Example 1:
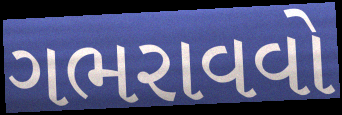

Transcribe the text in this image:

ગભરાવવો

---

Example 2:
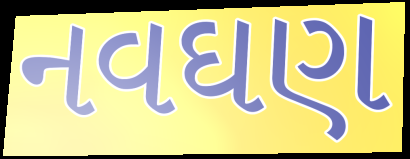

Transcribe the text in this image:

નવઘણ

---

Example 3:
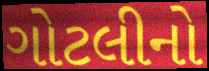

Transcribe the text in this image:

ગોટલીનો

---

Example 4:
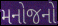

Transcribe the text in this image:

મનોજનો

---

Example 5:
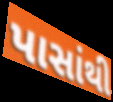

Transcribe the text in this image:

પાસાંથી